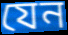
যেন